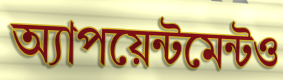
অ্যাপয়েন্টমেন্টও